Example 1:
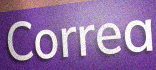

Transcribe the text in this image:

Correa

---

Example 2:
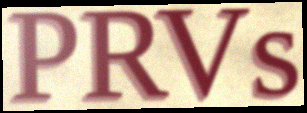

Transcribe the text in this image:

PRVs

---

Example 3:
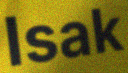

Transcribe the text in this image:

Isak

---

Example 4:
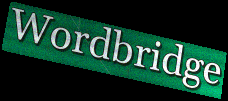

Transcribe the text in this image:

Wordbridge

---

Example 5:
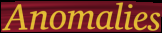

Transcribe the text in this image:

Anomalies